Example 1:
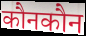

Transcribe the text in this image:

कौनकौन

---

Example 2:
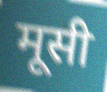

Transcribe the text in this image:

मूसी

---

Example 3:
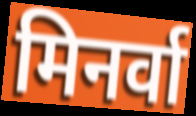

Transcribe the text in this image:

मिनर्वा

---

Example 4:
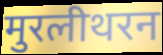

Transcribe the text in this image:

मुरलीथरन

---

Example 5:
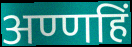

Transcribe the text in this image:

अण्णहिं